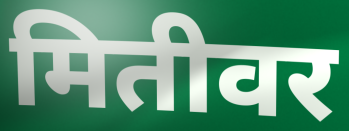
मितीवर